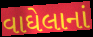
વાઘેલાનાં